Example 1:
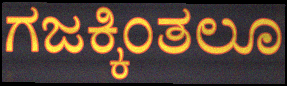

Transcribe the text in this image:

ಗಜಕ್ಕಿಂತಲೂ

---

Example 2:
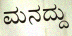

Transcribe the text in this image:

ಮನದ್ದು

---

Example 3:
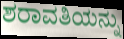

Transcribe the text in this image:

ಶರಾವತಿಯನ್ನು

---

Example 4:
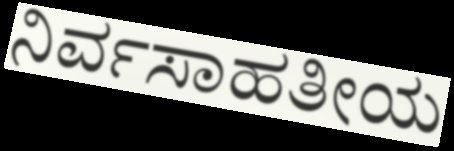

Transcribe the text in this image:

ನಿರ್ವಸಾಹತೀಯ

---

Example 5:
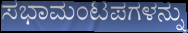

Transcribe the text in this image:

ಸಭಾಮಂಟಪಗಳನ್ನು